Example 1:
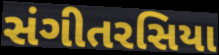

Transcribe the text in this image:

સંગીતરસિયા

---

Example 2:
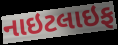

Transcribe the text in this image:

નાઇટલાઇફ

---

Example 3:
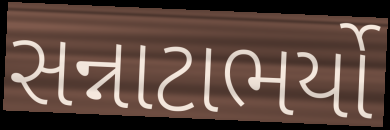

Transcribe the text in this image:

સન્નાટાભર્યો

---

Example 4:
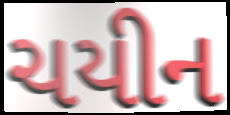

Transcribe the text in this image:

ચયીન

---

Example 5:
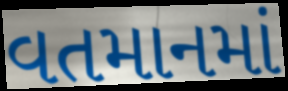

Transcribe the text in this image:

વતમાનમાં